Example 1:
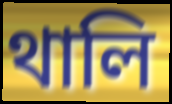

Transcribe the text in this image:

থালি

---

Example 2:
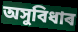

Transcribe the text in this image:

অসুবিধাৰ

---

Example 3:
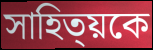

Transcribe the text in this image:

সাহিত্য়কে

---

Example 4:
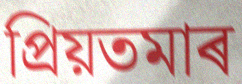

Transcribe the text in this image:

প্ৰিয়তমাৰ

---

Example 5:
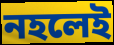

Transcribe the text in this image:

নহলেই